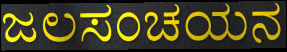
ಜಲಸಂಚಯನ